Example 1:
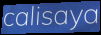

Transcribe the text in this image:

calisaya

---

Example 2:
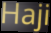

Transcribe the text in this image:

Haji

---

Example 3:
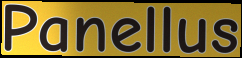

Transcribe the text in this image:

Panellus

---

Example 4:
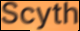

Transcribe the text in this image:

Scyth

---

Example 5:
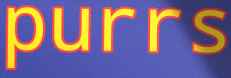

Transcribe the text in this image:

purrs